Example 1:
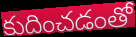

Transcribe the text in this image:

కుదించడంతో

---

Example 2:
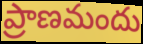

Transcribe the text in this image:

ప్రాణమందు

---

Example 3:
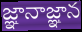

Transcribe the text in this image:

జ్ఞానాజ్ఞాన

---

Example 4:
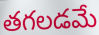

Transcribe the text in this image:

తగలడమే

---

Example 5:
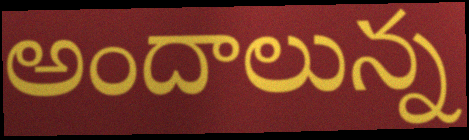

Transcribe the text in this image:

అందాలున్న